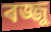
ৰজ্জু